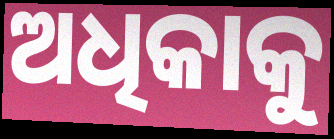
ଅଧିକାକୁ